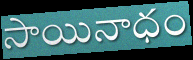
సాయినాధం